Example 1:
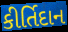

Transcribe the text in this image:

કીર્તિદાન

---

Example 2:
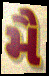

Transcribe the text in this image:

મૈ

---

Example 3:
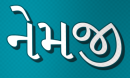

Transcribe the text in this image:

નેમજી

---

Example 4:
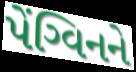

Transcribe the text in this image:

પેંગ્વિનને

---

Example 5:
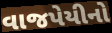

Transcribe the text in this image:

વાજપેયીનો